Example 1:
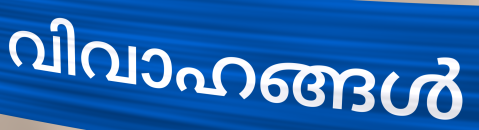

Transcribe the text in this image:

വിവാഹങ്ങൾ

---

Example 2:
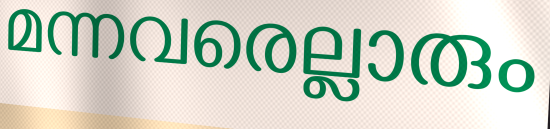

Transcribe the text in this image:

മന്നവരെല്ലാരും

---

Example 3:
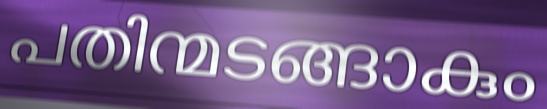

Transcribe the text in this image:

പതിന്മടങ്ങാകും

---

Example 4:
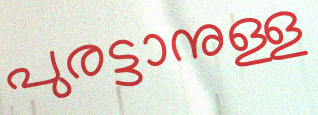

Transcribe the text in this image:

പുരട്ടാനുള്ള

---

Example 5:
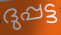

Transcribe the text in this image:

ദുപ്പട്ട